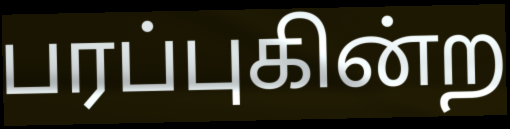
பரப்புகின்ற